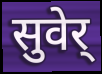
सुवेर्